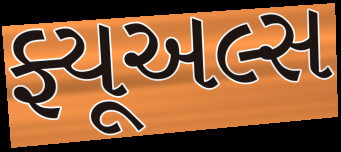
ફ્યૂઅલ્સ